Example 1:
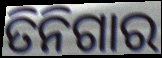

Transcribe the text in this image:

ତିନିଗାର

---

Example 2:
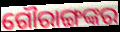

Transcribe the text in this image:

ଗୌରାଙ୍ଗଙ୍କର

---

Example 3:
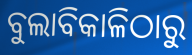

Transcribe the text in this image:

ବୁଲାବିକାଳିଠାରୁ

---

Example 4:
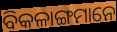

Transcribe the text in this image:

ବିକଳାଙ୍ଗମାନେ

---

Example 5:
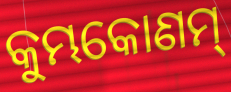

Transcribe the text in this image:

କୁମ୍ଭକୋଣମ୍